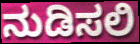
ನುಡಿಸಲಿ